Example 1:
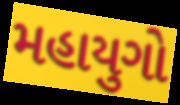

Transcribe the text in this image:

મહાયુગો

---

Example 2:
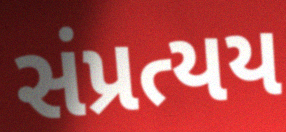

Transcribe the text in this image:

સંપ્રત્યય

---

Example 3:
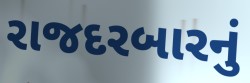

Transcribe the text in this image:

રાજદરબારનું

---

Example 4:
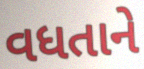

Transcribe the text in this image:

વધતાને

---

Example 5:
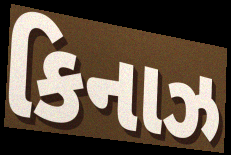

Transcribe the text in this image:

કિનાઝ